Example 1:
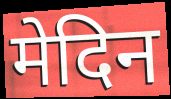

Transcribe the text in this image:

मेदिन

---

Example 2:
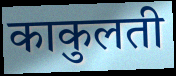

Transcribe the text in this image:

काकुलती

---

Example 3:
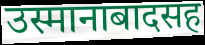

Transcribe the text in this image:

उस्मानाबादसह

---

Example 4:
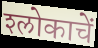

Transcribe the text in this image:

श्लोकाचें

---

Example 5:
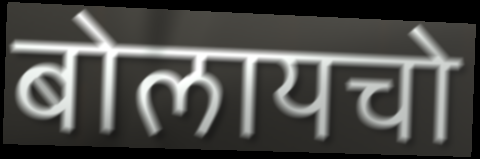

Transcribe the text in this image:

बोलायचो